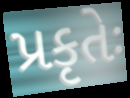
પ્રકૃતેઃ